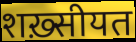
शख़्सीयत